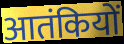
आतंकियों